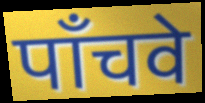
पाँचवे